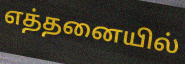
எத்தனையில்